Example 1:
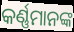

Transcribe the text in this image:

କର୍ଣ୍ଣମାନଙ୍କ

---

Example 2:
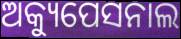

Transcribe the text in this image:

ଅକ୍ୟୁପେସନାଲ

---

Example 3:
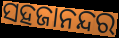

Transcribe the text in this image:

ସହଜାନନ୍ଦର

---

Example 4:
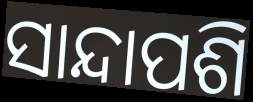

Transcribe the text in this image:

ସାନ୍ଦାପଶି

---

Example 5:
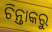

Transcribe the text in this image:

ଚିନ୍ତାକରୁ